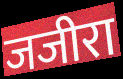
जजीरा